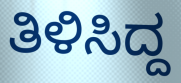
ತಿಳಿಸಿದ್ದ